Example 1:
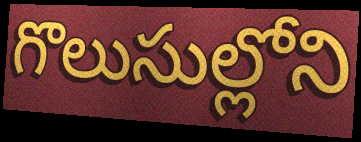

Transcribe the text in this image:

గొలుసుల్లోని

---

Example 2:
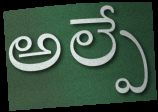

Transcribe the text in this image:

అల్పే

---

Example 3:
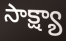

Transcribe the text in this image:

సాక్ష్యా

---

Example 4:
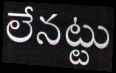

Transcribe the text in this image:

లేనట్టు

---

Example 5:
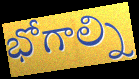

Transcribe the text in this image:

భోగాల్ని